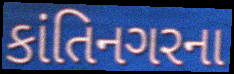
કાંતિનગરના